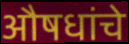
औषधांचे